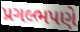
પ્રગલ્ભપણે